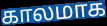
காலமாக